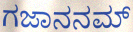
ಗಜಾನನಮ್